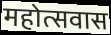
महोत्सवास